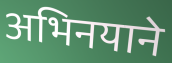
अभिनयाने